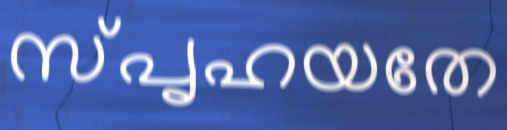
സ്പൃഹയതേ